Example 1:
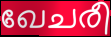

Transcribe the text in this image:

ഖേചരീ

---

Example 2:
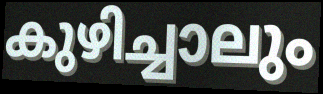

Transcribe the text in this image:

കുഴിച്ചാലും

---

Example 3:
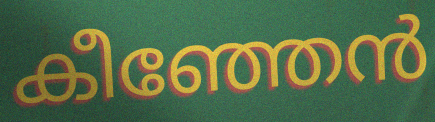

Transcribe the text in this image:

കീഞ്ഞേൻ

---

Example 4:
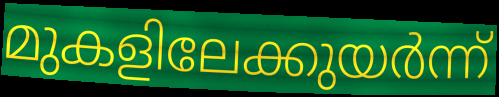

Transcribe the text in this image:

മുകളിലേക്കുയർന്ന്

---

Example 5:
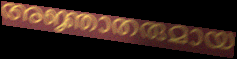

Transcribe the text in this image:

അജ്ഞാതരുമായ